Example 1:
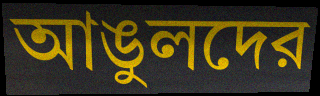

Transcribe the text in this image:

আঙুলদের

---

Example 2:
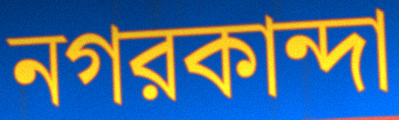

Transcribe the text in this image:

নগরকান্দা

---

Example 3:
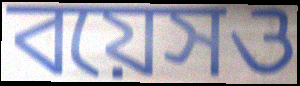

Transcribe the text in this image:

বয়েসও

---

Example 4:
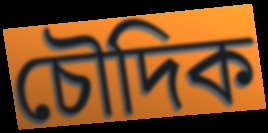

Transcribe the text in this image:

চৌদিক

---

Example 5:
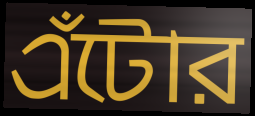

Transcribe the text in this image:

এঁটোর